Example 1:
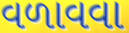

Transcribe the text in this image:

વળાવવા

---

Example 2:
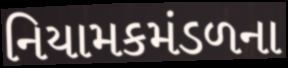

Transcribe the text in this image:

નિયામકમંડળના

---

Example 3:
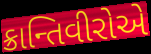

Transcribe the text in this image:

ક્રાન્તિવીરોએ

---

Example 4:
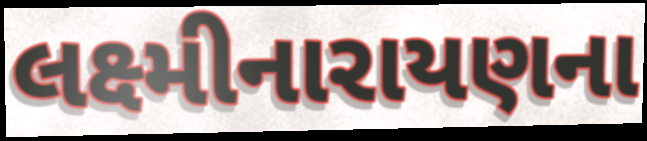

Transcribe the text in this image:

લક્ષ્મીનારાયણના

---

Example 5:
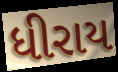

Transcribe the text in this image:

ધીરાય